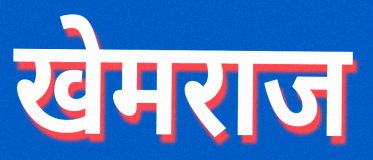
खेमराज